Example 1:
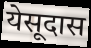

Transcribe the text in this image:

येसूदास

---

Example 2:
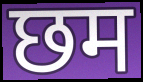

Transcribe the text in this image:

छम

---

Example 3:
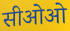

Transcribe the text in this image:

सीओओ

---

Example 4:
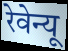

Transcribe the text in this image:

रेवेन्यू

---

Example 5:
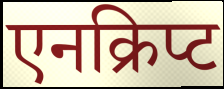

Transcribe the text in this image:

एनक्रिप्ट